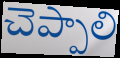
చెప్పాలి